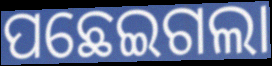
ପଛେଇଗଲା